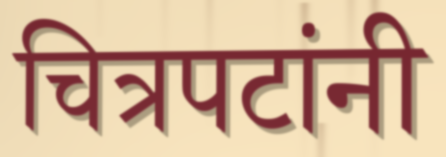
चित्रपटांनी